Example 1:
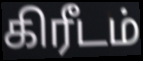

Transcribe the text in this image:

கிரீடம்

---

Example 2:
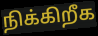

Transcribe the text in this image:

நிக்கிறீக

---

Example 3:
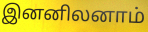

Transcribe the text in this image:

இனனிலனாம்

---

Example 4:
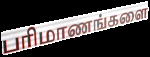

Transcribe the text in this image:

பரிமாணங்களை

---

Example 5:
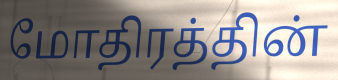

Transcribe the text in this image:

மோதிரத்தின்